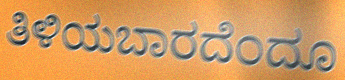
ತಿಳಿಯಬಾರದೆಂದೂ